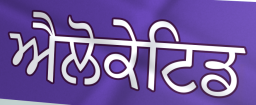
ਐਲੋਕੇਟਿਡ